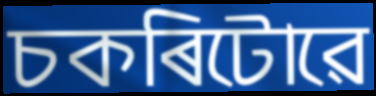
চকৰিটোৱে